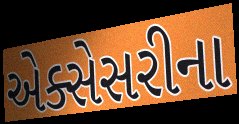
એક્સેસરીના